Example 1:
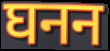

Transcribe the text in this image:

घनन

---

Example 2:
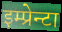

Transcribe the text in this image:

इम्प्रेन्टा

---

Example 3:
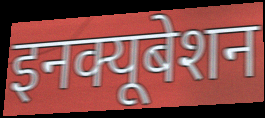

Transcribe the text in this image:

इनक्यूबेशन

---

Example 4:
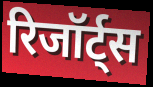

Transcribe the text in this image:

रिजॉर्ट्स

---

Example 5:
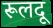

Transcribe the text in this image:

रूलदू